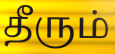
தீரும்